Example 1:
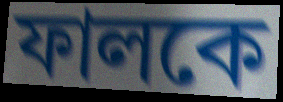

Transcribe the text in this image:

ফালকে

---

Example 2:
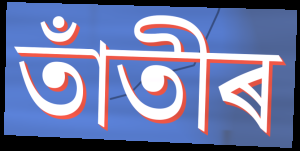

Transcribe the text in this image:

তাঁতীৰ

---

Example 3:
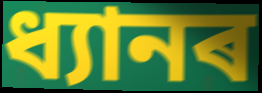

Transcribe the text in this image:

ধ্যানৰ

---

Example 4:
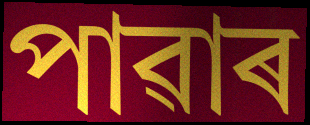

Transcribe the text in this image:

পাৱাৰ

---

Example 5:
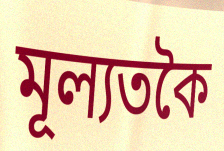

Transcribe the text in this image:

মূল্যতকৈ